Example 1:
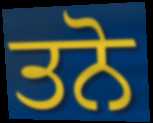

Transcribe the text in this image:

ਤਨੋ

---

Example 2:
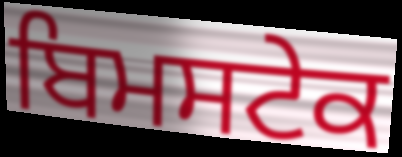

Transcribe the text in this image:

ਬਿਮਸਟੇਕ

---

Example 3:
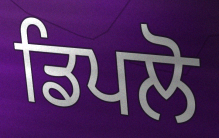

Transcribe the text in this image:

ਡਿਪਲੋ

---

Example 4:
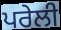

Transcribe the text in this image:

ਪਰੇਲੀ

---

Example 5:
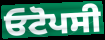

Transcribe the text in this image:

ਓਟੋਪਸੀ